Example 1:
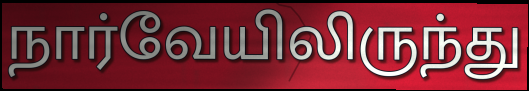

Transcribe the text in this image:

நார்வேயிலிருந்து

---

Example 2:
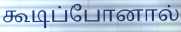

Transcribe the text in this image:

கூடிப்போனால்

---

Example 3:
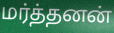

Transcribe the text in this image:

மர்த்தனன்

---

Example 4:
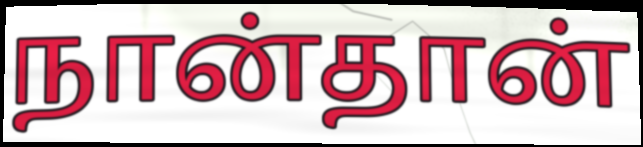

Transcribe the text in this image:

நான்தான்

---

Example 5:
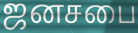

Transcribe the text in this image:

ஜனசபை